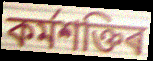
কৰ্মশক্তিৰ